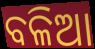
ବଳିଆ